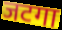
जटगा